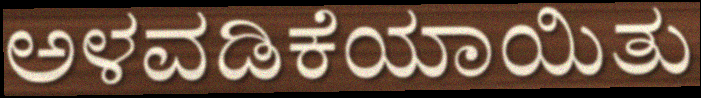
ಅಳವಡಿಕೆಯಾಯಿತು